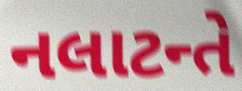
નલાટન્તે